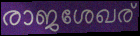
രാജശേഖര്